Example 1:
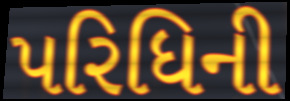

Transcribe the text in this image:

પરિધિની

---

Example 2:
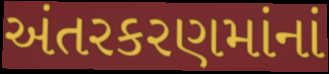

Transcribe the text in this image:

અંતરકરણમાંનાં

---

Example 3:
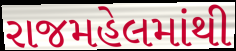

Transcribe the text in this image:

રાજમહેલમાંથી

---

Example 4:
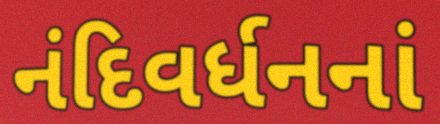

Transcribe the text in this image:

નંદિવર્ધનનાં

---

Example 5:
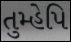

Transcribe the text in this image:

તુમ્હેપિ